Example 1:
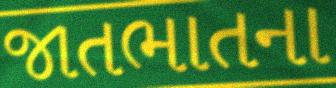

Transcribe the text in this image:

જાતભાતના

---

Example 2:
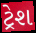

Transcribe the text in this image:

ટ્રેશ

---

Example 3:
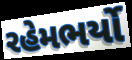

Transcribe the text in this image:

રહેમભર્યો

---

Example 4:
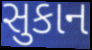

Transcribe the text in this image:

સુકાન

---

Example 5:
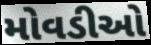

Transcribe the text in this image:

મોવડીઓ